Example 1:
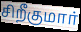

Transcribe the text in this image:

சிறீகுமார்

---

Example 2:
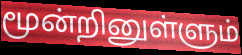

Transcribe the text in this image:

மூன்றினுள்ளும்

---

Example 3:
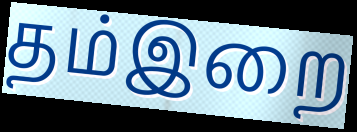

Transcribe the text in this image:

தம்இறை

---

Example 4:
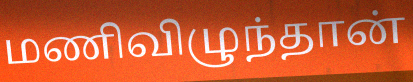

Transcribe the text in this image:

மணிவிழுந்தான்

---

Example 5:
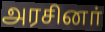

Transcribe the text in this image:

அரசினர்